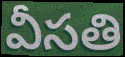
వీసతి